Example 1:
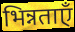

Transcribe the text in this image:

भिन्नताएँ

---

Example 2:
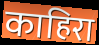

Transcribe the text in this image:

काहिरा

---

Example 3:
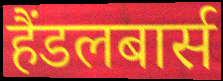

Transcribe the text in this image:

हैंडलबार्स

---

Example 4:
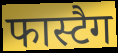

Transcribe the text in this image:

फास्टैग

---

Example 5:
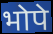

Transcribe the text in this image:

भोपे